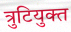
त्रुटियुक्त